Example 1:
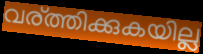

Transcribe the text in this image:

വര്ത്തിക്കുകയില്ല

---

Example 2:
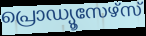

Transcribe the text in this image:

പ്രൊഡ്യൂസേഴ്സ്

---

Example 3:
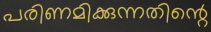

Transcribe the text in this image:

പരിണമിക്കുന്നതിന്റെ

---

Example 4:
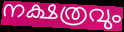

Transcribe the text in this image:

നക്ഷത്രവും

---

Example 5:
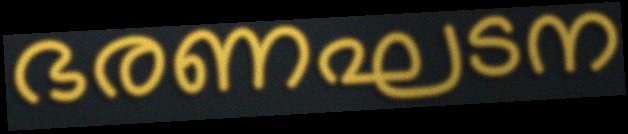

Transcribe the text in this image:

ഭരണഘടന